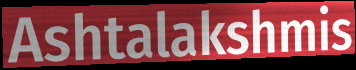
Ashtalakshmis